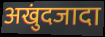
अखुंदजादा